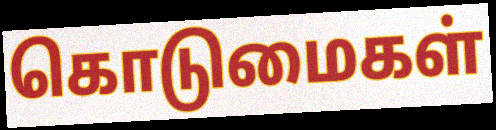
கொடுமைகள்